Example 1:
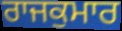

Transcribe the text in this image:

ਰਾਜਕੁਮਾਰ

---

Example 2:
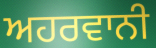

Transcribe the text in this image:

ਅਹਰਵਾਨੀ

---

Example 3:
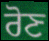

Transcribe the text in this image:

ਰੋਣ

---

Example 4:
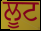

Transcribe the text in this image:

ਲੂਟ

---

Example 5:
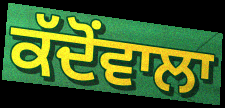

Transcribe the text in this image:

ਕੱਦੋਂਵਾਲਾ